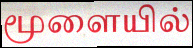
மூளையில்